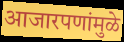
आजारपणांमुळे